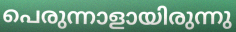
പെരുന്നാളായിരുന്നു